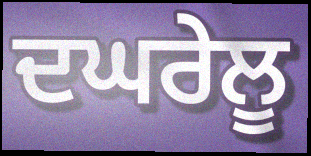
ਦਘਰੇਲੂ